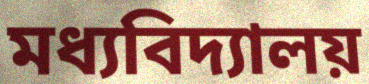
মধ্যবিদ্যালয়